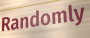
Randomly